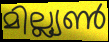
മില്ല്യൺ